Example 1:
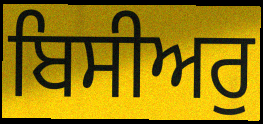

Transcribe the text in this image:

ਬਿਸੀਅਰੁ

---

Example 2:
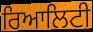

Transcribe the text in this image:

ਰਿਆਲਿਟੀ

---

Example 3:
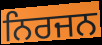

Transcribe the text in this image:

ਨਿਰਜਨ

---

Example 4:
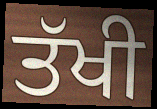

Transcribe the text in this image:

ਤੱਖੀ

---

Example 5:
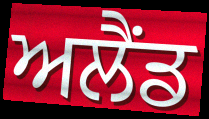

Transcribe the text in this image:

ਅਲੈਂਡ